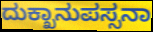
ದುಕ್ಖಾನುಪಸ್ಸನಾ